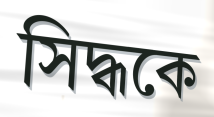
সিদ্ধকে